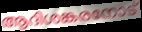
ആദിശങ്കരനോട്